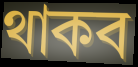
থাকব